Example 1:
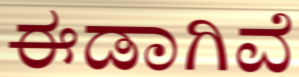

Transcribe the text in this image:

ಈಡಾಗಿವೆ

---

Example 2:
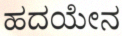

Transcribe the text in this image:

ಹದಯೇನ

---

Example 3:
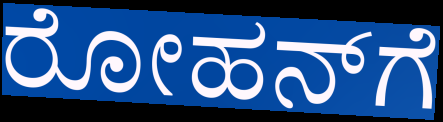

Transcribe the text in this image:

ರೋಹನ್‌ಗೆ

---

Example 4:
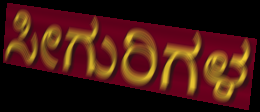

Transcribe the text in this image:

ಸೀಗುರಿಗಳ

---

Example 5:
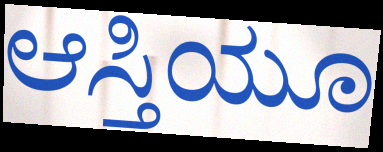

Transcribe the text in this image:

ಆಸ್ತಿಯೂ